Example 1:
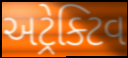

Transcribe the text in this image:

અટ્રેક્ટિવ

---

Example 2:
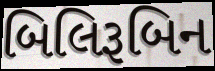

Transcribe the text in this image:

બિલિરૂબિન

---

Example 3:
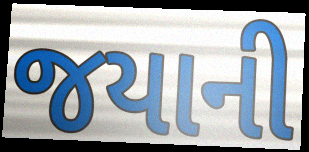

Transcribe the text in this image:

જયાની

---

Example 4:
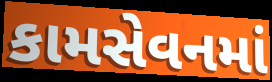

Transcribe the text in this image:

કામસેવનમાં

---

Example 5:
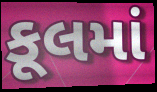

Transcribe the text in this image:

કૂલમાં